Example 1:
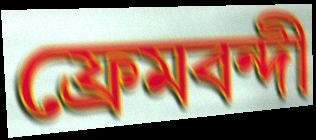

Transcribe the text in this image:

ফ্রেমবন্দী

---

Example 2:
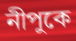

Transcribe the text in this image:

নীপুকে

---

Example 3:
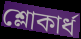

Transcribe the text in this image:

শ্লোকার্ধ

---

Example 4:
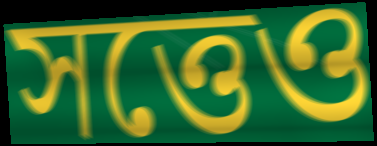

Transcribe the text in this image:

সত্তেও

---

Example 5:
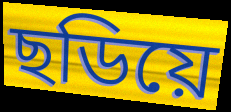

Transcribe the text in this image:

ছডিয়ে